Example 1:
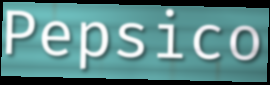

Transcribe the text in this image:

Pepsico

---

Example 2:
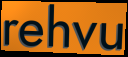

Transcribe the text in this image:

rehvu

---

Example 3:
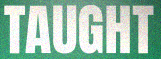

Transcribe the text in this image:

TAUGHT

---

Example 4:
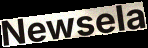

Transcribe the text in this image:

Newsela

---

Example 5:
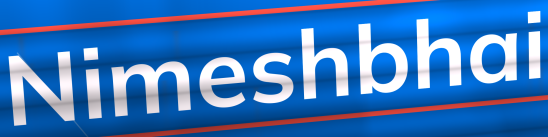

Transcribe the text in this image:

Nimeshbhai